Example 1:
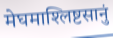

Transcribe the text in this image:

मेघमाश्लिष्टसानुं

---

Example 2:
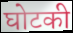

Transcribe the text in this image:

घोटकी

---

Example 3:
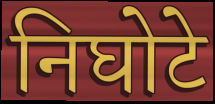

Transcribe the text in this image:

निघोटे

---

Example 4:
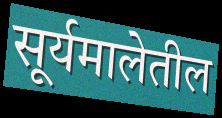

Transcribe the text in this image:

सूर्यमालेतील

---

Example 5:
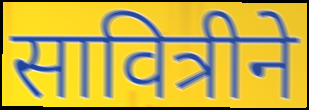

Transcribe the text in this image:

सावित्रीने